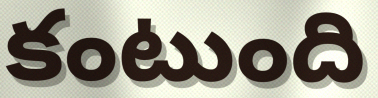
కంటుంది